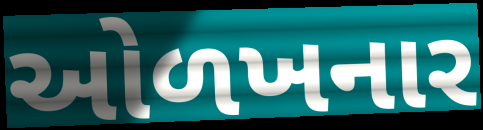
ઓળખનાર